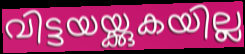
വിട്ടയയ്ക്കുകയില്ല